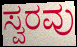
ಸ್ವರವು